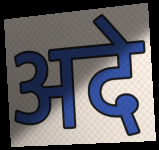
अदे